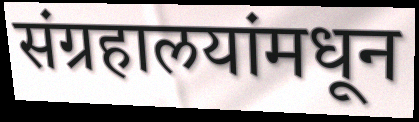
संग्रहालयांमधून